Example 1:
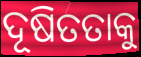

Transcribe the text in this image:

ଦୂଷିତତାକୁ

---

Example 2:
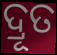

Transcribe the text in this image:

ଦ୍ରୂତ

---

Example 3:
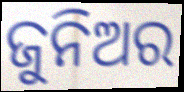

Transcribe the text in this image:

ଜୁନିଅର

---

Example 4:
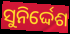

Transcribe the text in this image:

ସୁନିର୍ଦ୍ଦେଶ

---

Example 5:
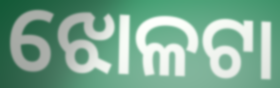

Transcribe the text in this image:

ଝୋଳଟା